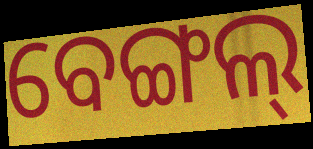
ବେଙ୍ଗଲ୍